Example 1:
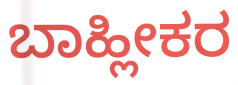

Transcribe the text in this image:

ಬಾಹ್ಲೀಕರ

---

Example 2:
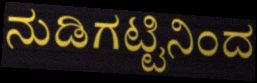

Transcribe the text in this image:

ನುಡಿಗಟ್ಟಿನಿಂದ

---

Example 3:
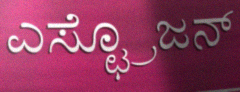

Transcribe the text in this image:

ಎಸ್ಟ್ರೊಜನ್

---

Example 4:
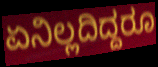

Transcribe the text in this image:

ಏನಿಲ್ಲದಿದ್ದರೂ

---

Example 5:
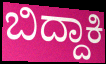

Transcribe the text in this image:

ಬಿದ್ದಾಕಿ